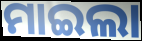
ମାଇଲା